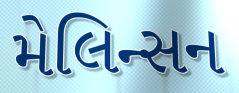
મેલિન્સન